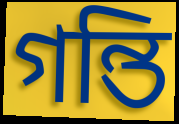
গন্তি